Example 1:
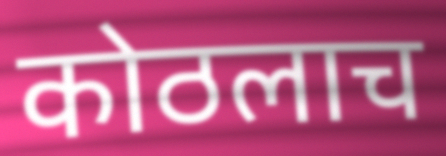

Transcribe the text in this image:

कोठलाच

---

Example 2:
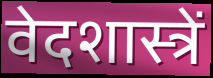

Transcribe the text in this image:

वेदशास्त्रें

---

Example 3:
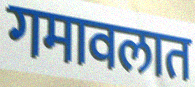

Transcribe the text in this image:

गमावलात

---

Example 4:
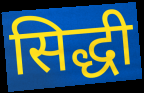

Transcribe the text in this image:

सिद्धी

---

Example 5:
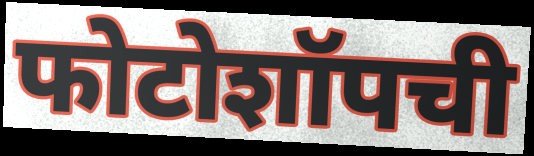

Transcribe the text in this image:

फोटोशॉपची